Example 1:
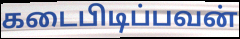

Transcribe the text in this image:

கடைபிடிப்பவன்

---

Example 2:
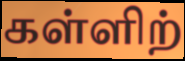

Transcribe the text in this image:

கள்ளிற்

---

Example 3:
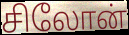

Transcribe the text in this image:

சிலோன்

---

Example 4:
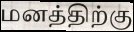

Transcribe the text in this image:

மனத்திற்கு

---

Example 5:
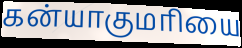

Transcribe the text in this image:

கன்யாகுமரியை